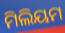
ମିଲିୟମ